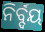
ନିର୍ବ୍ଦୟ